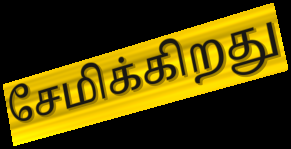
சேமிக்கிறது